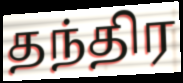
தந்திர